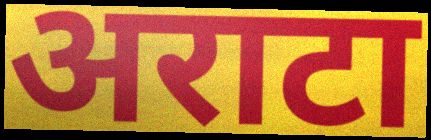
अराटा